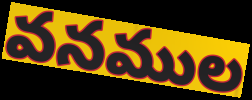
వనముల